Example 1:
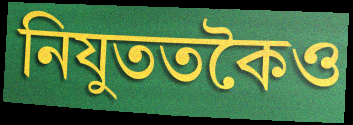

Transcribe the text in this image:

নিযুততকৈও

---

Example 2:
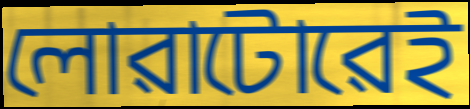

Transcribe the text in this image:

লোৱাটোৱেই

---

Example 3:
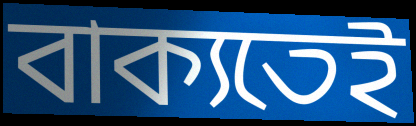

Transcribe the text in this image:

বাক্যতেই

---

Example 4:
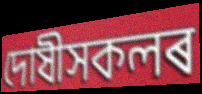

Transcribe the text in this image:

দোষীসকলৰ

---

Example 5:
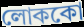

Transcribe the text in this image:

লোককো